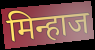
मिन्हाज